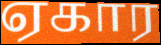
ஏகார